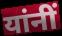
यांनीं